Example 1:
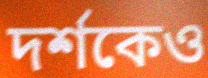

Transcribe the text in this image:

দৰ্শকেও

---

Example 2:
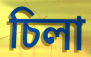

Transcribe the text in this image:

চিলা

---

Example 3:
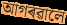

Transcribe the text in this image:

আগৰৱালে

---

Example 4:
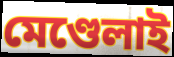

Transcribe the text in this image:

মেণ্ডেলাই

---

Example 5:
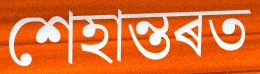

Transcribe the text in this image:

শেহান্তৰত